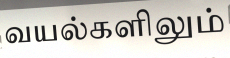
வயல்களிலும்